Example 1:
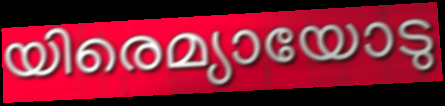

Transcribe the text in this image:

യിരെമ്യായോടു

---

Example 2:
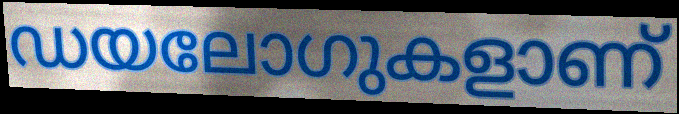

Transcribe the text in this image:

ഡയലോഗുകളാണ്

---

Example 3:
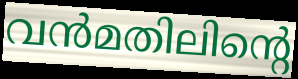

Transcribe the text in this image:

വൻമതിലിന്റെ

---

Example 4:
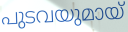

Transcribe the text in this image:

പുടവയുമായ്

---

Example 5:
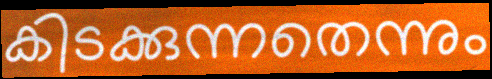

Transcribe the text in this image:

കിടക്കുന്നതെന്നും